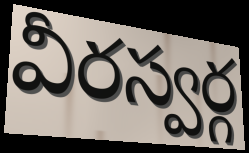
వీరస్వర్గ